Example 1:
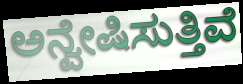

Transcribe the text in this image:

ಅನ್ವೇಷಿಸುತ್ತಿವೆ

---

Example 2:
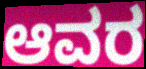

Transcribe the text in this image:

ಆವರ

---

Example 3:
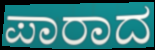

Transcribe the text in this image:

ಪಾರಾದ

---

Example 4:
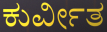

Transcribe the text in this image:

ಕುರ್ವೀತ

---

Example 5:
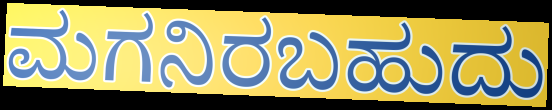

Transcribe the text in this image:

ಮಗನಿರಬಹುದು